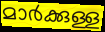
മാർക്കുള്ള